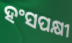
ହଂସପକ୍ଷୀ